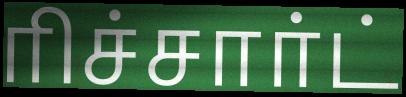
ரிச்சார்ட்